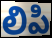
లిపి